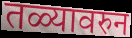
तळ्यावरुन